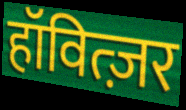
हॉवित्ज़र